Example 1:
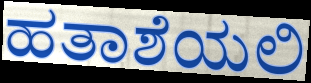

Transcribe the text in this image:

ಹತಾಶೆಯಲಿ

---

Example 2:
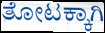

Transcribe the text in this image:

ತೋಟಕ್ಕಾಗಿ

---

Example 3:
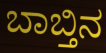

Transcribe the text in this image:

ಬಾಬ್ತಿನ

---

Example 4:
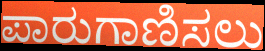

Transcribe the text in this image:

ಪಾರುಗಾಣಿಸಲು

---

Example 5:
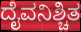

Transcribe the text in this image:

ದೈವನಿಶ್ಚಿತ